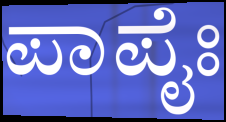
ಪಾಪೈಃ